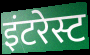
इंटरेस्ट